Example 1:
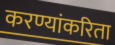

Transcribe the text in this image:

करण्यांकरिता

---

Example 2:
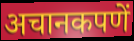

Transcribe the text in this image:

अचानकपणें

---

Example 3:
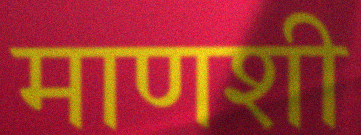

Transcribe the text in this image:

माणशी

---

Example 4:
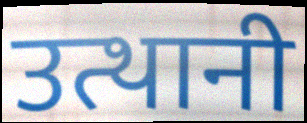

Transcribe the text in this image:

उत्थानी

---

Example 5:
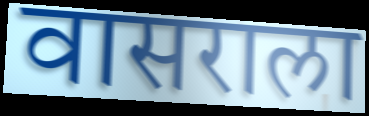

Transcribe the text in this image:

वासराला